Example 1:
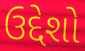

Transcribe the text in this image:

ઉદ્દેશો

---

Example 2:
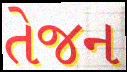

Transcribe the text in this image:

તેજન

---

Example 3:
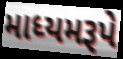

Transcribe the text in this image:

માધ્યમરૂપે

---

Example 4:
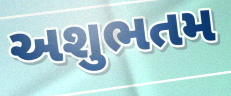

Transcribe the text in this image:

અશુભતમ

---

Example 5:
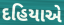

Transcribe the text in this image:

દહિયાએ